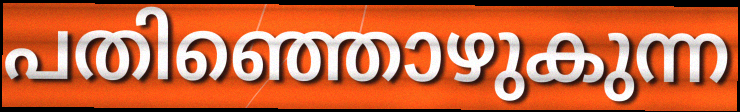
പതിഞ്ഞൊഴുകുന്ന